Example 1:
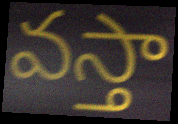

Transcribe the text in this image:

వస్తా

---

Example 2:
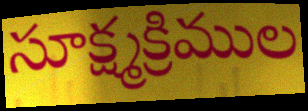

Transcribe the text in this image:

సూక్ష్మక్రిముల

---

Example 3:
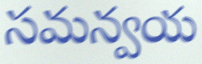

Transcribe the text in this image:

సమన్వయ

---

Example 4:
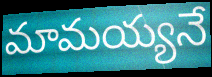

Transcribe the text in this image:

మామయ్యనే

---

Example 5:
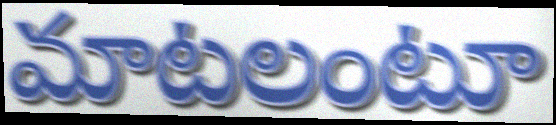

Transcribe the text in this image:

మాటలంటూ